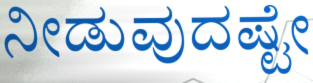
ನೀಡುವುದಷ್ಟೇ